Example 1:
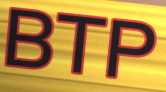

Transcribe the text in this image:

BTP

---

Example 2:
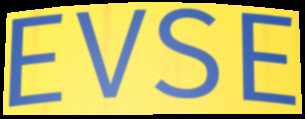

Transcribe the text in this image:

EVSE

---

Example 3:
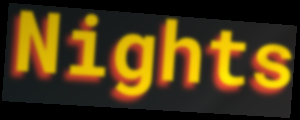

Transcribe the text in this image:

Nights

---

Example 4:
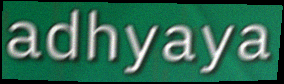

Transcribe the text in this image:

adhyaya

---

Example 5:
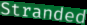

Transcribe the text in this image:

Stranded